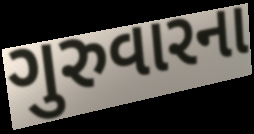
ગુરુવારના